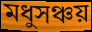
মধুসঞ্চয়